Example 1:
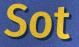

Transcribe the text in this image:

Sot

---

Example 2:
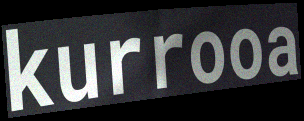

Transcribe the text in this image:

kurrooa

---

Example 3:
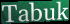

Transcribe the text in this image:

Tabuk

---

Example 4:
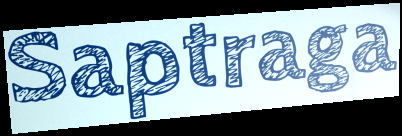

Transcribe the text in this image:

Saptraga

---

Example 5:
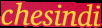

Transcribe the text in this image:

chesindi